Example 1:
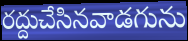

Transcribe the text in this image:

రద్దుచేసినవాడగును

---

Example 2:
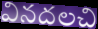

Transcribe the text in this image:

వినదలచి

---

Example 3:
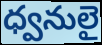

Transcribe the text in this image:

ధ్వనులై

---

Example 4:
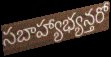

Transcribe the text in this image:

సబాహ్యాభ్యన్తరో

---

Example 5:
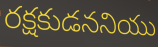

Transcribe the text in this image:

రక్షకుడననియు